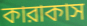
কারাকাস